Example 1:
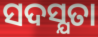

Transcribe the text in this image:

ସଦସ୍ଯତା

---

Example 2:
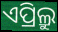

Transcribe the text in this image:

ଏପ୍ରିଲ୍ରୁ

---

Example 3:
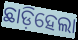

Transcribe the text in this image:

ଛାଡ଼ିହେଲା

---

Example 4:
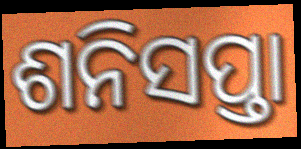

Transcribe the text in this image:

ଶନିସପ୍ତା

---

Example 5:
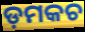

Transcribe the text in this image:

ଡ଼ମକଚ